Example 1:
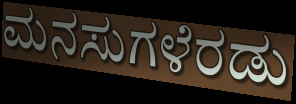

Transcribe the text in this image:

ಮನಸುಗಳೆರಡು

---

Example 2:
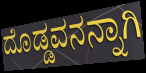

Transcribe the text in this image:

ದೊಡ್ಡವನನ್ನಾಗಿ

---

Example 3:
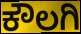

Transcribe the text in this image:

ಕೌಲಗಿ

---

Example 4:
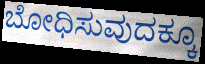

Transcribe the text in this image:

ಬೋಧಿಸುವುದಕ್ಕೂ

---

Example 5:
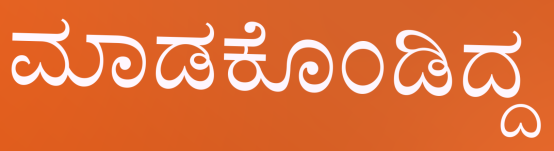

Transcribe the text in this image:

ಮಾಡಕೊಂಡಿದ್ದ